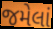
જમેલાં